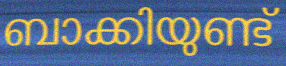
ബാക്കിയുണ്ട്